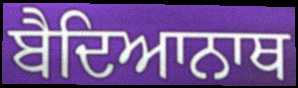
ਬੈਦਿਆਨਾਥ